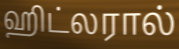
ஹிட்லரால்